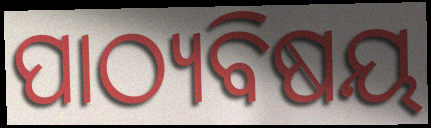
ପାଠ୍ୟବିଷୟ